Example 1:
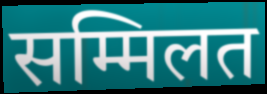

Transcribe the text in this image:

सम्मिलत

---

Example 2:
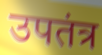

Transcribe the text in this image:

उपतंत्र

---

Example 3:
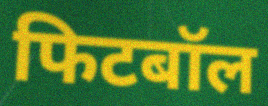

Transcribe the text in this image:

फिटबॉल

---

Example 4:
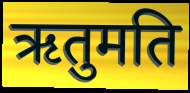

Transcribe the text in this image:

ऋतुमति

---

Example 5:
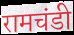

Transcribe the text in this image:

रामचंडी